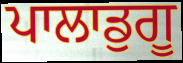
ਪਾਲਾਡੁਗੂ